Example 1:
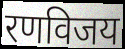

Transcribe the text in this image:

रणविजय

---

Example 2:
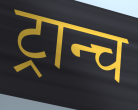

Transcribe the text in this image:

ट्रान्च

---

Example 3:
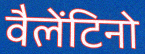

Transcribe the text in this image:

वैलेंटिनो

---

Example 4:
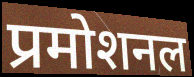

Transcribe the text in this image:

प्रमोशनल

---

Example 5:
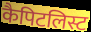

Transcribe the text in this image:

कैपिटलिस्ट